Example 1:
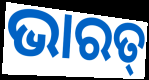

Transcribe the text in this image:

ଭାରତ୍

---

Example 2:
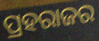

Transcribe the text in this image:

ପ୍ରହରାଜର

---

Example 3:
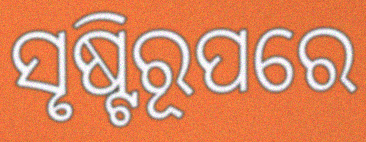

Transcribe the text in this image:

ସୃଷ୍ଟିରୂପରେ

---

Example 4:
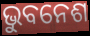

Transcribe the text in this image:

ଭୁବନେଶ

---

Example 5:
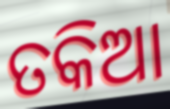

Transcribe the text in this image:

ତକିଆ